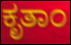
ಕೃತಾಂ